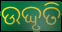
ଉଦ୍ଦୃତି